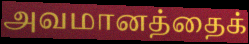
அவமானத்தைக்